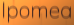
Ipomea